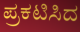
ಪ್ರಕಟಿಸಿದ